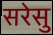
सरेसु